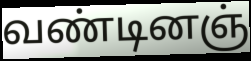
வண்டினஞ்